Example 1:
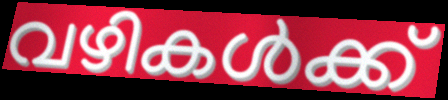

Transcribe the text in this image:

വഴികൾക്ക്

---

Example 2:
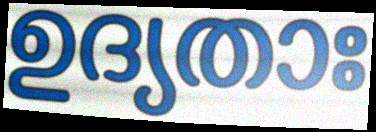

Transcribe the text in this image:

ഉദ്യതാഃ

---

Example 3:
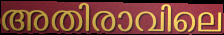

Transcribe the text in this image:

അതിരാവിലെ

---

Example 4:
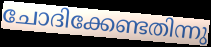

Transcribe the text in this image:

ചോദിക്കേണ്ടതിന്നു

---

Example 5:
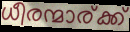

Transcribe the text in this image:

ധീരന്മാര്ക്ക്